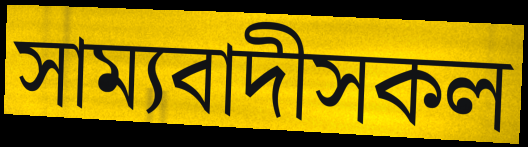
সাম্যবাদীসকল